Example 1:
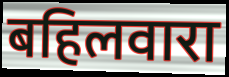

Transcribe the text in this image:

बहिलवारा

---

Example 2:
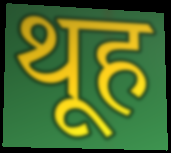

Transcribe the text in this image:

थूह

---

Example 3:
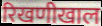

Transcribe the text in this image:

रिखणीखाल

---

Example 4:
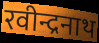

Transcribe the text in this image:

रवीन्‍द्रनाथ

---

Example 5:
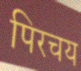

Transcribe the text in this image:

पिरचय